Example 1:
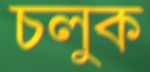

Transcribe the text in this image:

চলুক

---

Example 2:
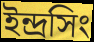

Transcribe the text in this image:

ইন্দ্রসিং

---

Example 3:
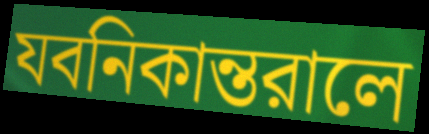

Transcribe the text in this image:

যবনিকান্তরালে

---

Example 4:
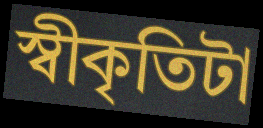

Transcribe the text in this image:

স্বীকৃতিটা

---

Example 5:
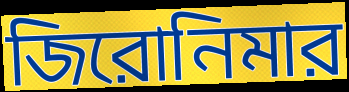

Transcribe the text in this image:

জিরোনিমার